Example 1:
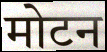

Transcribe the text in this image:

मोटन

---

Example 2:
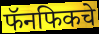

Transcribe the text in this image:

फॅनफिकचे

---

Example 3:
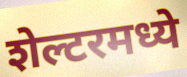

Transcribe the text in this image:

शेल्टरमध्ये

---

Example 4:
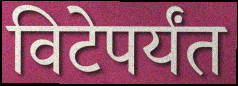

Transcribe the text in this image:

विटेपर्यंत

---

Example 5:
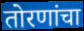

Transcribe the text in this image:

तोरणांचा